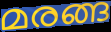
മരങ്ങ